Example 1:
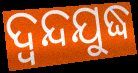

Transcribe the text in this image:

ଦ୍ୱନ୍ଦଯୁଦ୍ଧ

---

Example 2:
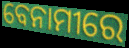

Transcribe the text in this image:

ବେନାମୀରେ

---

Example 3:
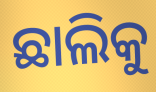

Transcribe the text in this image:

ଛାଲିକୁ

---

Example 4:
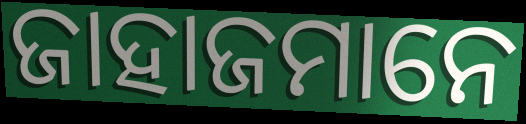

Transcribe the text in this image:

ଜାହାଜମାନେ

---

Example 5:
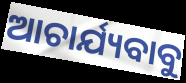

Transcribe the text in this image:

ଆଚାର୍ଯ୍ୟବାବୁ